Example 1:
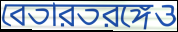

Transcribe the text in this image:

বেতারতরঙ্গেও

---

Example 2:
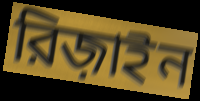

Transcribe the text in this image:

রিজ়াইন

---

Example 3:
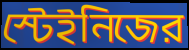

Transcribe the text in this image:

স্টেইনিজের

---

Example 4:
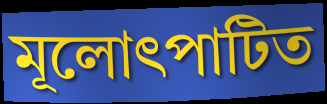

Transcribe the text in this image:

মূলোৎপাটিত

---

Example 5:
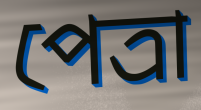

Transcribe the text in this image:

পেত্রা